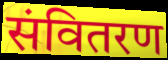
संवितरण